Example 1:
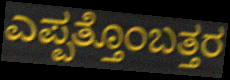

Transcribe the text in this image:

ಎಪ್ಪತ್ತೊಂಬತ್ತರ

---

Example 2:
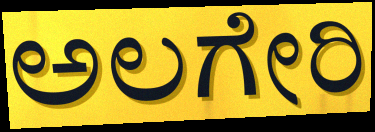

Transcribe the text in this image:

ಅಲಗೇರಿ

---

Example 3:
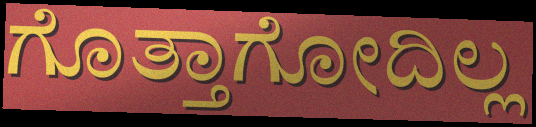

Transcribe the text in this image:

ಗೊತ್ತಾಗೋದಿಲ್ಲ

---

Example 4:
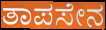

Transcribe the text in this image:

ತಾಪಸೇನ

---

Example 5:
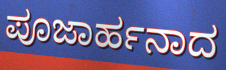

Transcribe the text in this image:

ಪೂಜಾರ್ಹನಾದ